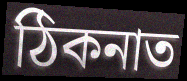
ঠিকনাত